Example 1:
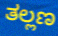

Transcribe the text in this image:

ತಲ್ಲಣ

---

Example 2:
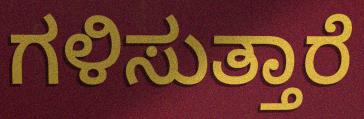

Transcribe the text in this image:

ಗಳಿಸುತ್ತಾರೆ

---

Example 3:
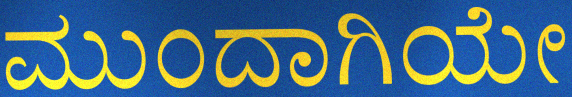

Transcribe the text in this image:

ಮುಂದಾಗಿಯೇ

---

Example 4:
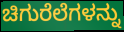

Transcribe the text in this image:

ಚಿಗುರೆಲೆಗಳನ್ನು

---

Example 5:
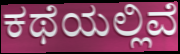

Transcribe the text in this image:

ಕಥೆಯಲ್ಲಿವೆ